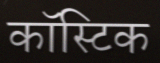
कॉस्टिक